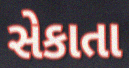
સેકાતા